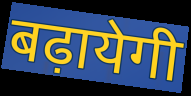
बढ़ायेगी